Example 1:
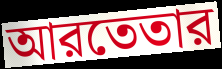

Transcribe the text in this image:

আরতেতার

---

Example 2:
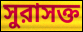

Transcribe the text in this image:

সুরাসক্ত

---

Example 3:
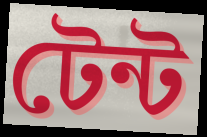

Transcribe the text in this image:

টেন্ট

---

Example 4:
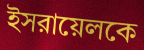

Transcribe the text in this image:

ইসরায়েলকে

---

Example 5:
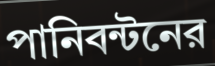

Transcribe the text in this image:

পানিবন্টনের